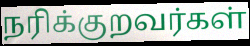
நரிக்குறவர்கள்